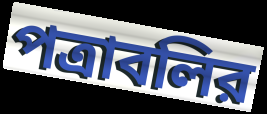
পত্রাবলির